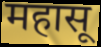
महासू